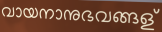
വായനാനുഭവങ്ങള്